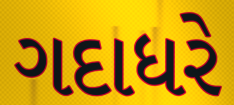
ગદાધરે